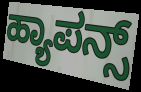
ಹ್ಯಾಪನ್ಸ್